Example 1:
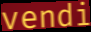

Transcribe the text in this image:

vendi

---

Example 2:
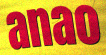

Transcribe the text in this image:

anao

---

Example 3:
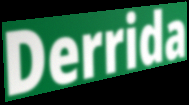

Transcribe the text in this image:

Derrida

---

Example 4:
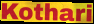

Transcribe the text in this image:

Kothari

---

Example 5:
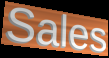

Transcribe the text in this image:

Sales